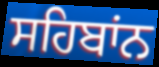
ਸਹਿਬਾਂਨ